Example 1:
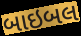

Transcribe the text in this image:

બાઇબલ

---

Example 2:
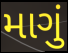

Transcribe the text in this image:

માગું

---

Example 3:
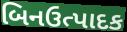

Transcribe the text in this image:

બિનઉત્પાદક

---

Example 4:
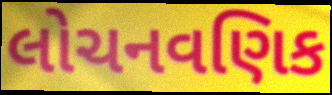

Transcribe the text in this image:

લોચનવણિક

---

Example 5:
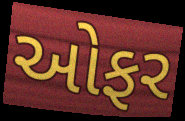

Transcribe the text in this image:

ઓફર